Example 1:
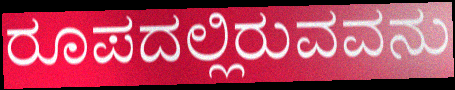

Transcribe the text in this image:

ರೂಪದಲ್ಲಿರುವವನು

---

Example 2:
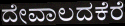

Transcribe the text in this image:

ದೇವಾಲದಕೆರೆ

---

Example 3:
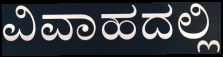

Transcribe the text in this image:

ವಿವಾಹದಲ್ಲಿ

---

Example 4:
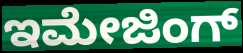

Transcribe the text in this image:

ಇಮೇಜಿಂಗ್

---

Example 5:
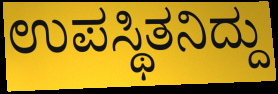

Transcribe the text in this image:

ಉಪಸ್ಥಿತನಿದ್ದು